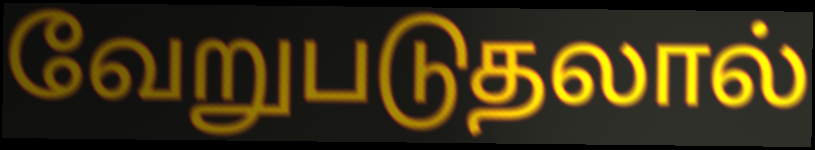
வேறுபடுதலால்